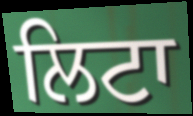
ਲਿਟਾ